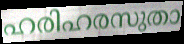
ഹരിഹരസുതാ